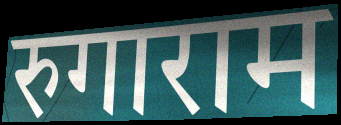
रुगाराम